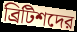
ব্রিটিশদের